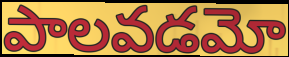
పాలవడమో